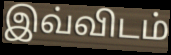
இவ்விடம்